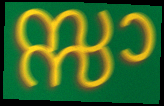
സ്സാ